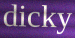
dicky